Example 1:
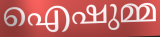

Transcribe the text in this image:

ഐഷുമ്മ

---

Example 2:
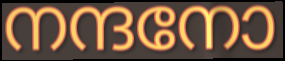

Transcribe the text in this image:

നന്ദനോ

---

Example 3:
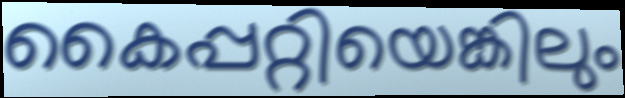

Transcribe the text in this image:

കൈപ്പറ്റിയെങ്കിലും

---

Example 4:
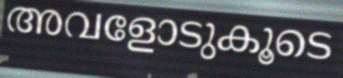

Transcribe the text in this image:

അവളോടുകൂടെ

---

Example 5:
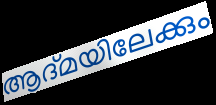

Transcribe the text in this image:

ആദ്മയിലേക്കും